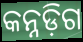
କନ୍ନଡ଼ିଗ